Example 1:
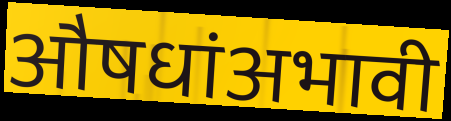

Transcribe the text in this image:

औषधांअभावी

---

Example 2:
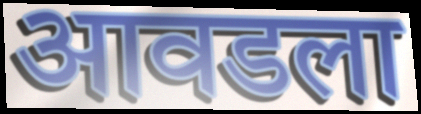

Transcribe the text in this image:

आवडला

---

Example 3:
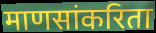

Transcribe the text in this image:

माणसांकरिता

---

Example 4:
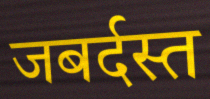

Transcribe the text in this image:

जबर्दस्त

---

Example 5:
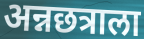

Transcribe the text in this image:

अन्नछत्राला